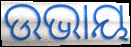
ଉଭାୟ